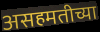
असहमतीच्या